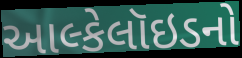
આલ્કેલૉઇડનો